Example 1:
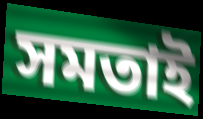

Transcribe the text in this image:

সমতাই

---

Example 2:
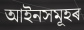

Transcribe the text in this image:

আইনসমূহৰ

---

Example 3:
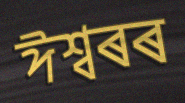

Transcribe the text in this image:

ঈশ্বৰৰ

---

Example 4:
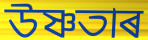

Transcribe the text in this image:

উষ্ণতাৰ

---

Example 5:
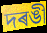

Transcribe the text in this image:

দৰঙী